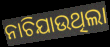
ନାଚିଯାଉଥିଲା